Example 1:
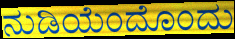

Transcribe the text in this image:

ನುಡಿಯೆಂದೊಂದು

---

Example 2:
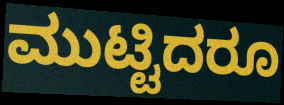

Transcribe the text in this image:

ಮುಟ್ಟಿದರೂ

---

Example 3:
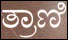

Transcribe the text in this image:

ತ್ರಾಣಿ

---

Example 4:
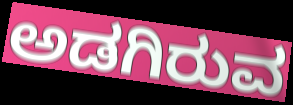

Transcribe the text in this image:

ಅಡಗಿರುವ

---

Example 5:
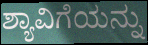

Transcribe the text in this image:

ಶ್ಯಾವಿಗೆಯನ್ನು